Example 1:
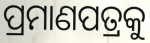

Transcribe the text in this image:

ପ୍ରମାଣପତ୍ରକୁ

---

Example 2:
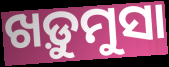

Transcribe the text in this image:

ଖଡ଼ୁମୁସା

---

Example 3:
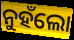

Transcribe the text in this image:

ନୁହଁଲୋ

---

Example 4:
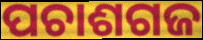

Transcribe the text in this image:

ପଚାଶଗଜ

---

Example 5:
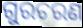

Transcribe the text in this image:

ଗୁରଚରଣ